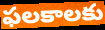
ఫలకాలకు